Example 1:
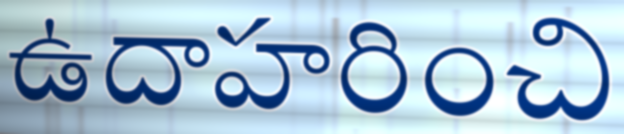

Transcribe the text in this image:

ఉదాహరించి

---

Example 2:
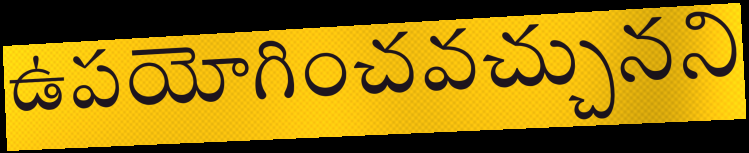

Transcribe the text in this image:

ఉపయోగించవచ్చునని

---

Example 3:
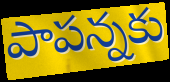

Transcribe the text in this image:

పాపన్నకు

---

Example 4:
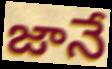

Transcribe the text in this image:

జానే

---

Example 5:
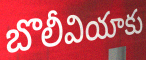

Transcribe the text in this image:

బొలీవియాకు